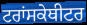
ਟਰਾਂਸਕੇਥੀਟਰ